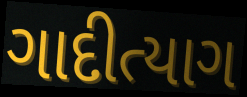
ગાદીત્યાગ